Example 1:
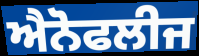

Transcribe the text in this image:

ਐਨੋਫਲੀਜ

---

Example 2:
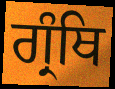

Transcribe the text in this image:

ਗ੍ਰੰਥਿ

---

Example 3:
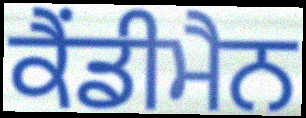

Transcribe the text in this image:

ਕੈਂਡੀਮੈਨ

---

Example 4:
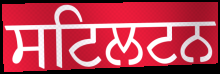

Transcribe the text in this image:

ਸਟਿਲਟਨ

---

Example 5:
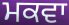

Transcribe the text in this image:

ਮਕਵਾ